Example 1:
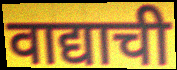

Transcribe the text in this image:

वाद्याची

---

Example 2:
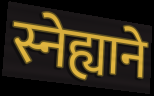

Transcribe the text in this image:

स्नेह्याने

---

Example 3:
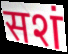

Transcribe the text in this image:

सशं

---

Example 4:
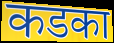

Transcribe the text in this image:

कडका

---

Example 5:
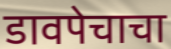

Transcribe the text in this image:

डावपेचाचा